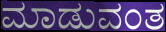
ಮಾಡುವಂತ